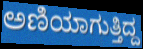
ಅಣಿಯಾಗುತ್ತಿದ್ದ